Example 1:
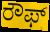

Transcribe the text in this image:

ರೌಫ್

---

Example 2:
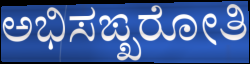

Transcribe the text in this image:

ಅಭಿಸಙ್ಖರೋತಿ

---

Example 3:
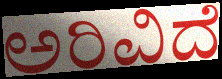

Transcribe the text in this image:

ಅರಿವಿದೆ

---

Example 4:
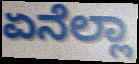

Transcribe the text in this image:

ಏನೆಲ್ಲಾ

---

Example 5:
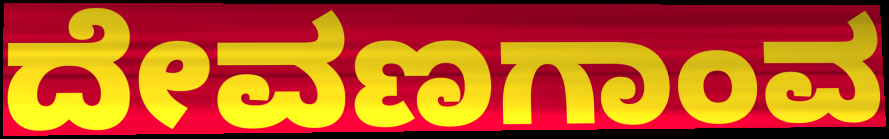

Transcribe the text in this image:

ದೇವಣಗಾಂವ